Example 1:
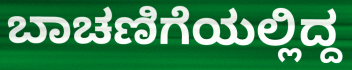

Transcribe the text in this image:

ಬಾಚಣಿಗೆಯಲ್ಲಿದ್ದ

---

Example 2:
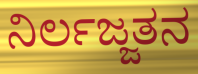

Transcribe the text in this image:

ನಿರ್ಲಜ್ಜತನ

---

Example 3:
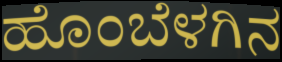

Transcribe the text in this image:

ಹೊಂಬೆಳಗಿನ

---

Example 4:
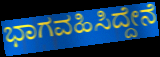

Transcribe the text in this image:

ಭಾಗವಹಿಸಿದ್ದೇನೆ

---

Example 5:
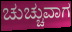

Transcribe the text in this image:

ಚುಚ್ಚುವಾಗ